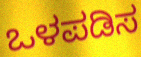
ಒಳಪಡಿಸ